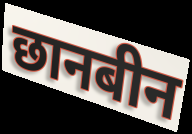
छानबीन